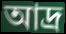
আদ্র